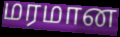
மரமான